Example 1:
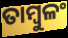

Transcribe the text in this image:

ତାମ୍ବୁଳଂ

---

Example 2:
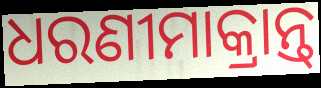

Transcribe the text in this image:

ଧରଣୀମାକ୍ରାନ୍ତ୍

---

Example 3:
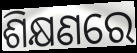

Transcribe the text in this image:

ଶିକ୍ଷଣରେ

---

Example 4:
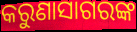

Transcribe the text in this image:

କରୁଣାସାଗରଙ୍କ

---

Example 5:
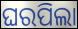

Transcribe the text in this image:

ଘରପିଲା